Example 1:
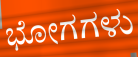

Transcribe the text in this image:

ಭೋಗಗಳು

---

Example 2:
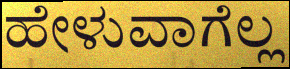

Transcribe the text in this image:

ಹೇಳುವಾಗೆಲ್ಲ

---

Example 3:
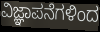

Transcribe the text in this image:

ವಿಜ್ಞಾಪನೆಗಳಿಂದ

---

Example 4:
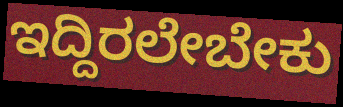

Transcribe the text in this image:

ಇದ್ದಿರಲೇಬೇಕು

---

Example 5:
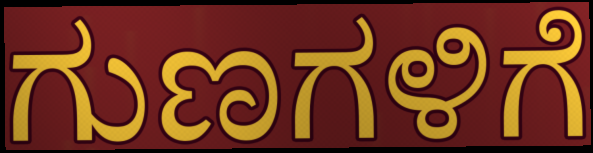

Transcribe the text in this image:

ಗುಣಗಳಿಗೆ